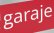
garaje